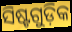
ସିଷ୍ଟଗୁଡ଼ିକ